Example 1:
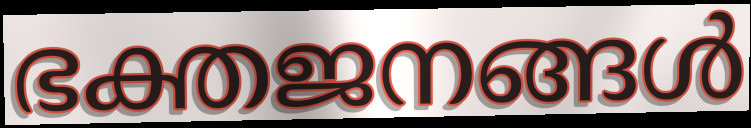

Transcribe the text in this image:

ഭക്തജനങ്ങൾ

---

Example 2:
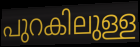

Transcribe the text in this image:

പുറകിലുള്ള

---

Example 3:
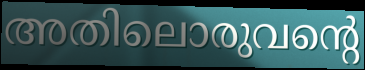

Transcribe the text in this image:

അതിലൊരുവന്റെ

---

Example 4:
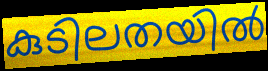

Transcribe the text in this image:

കുടിലതയിൽ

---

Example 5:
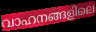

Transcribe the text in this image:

വാഹനങ്ങളിലെ